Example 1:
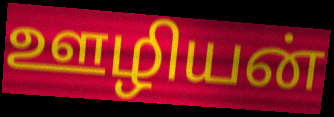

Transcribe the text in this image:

ஊழியன்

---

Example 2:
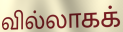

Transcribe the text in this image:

வில்லாகக்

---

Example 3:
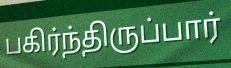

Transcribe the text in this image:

பகிர்ந்திருப்பார்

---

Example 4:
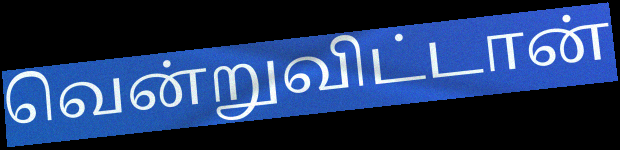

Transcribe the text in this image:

வென்றுவிட்டான்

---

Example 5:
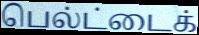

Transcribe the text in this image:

பெல்ட்டைக்